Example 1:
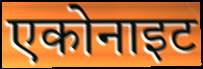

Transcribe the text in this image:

एकोनाइट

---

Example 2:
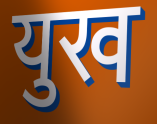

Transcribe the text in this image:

युख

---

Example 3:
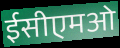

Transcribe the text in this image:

ईसीएमओ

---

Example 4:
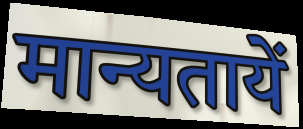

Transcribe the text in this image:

मान्यतायें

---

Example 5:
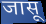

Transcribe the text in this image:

जासू